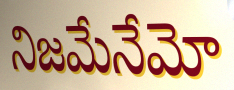
నిజమేనేమో